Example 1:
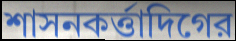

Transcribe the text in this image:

শাসনকর্ত্তাদিগের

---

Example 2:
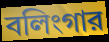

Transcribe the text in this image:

বলিংগার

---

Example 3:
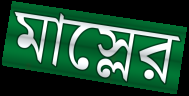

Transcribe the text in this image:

মাস্লের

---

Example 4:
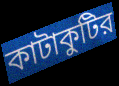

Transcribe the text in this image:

কাটাকুটির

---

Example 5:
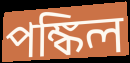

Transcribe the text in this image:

পঙ্কিল